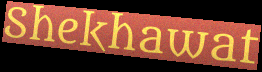
Shekhawat